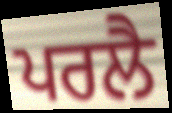
ਪਰਲੈ